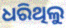
ଧରିଥିଲୁ